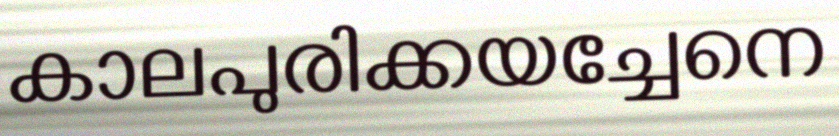
കാലപുരിക്കയച്ചേനെ